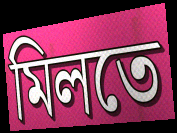
মিলতে